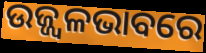
ଉଜ୍ଜ୍ୱଳଭାବରେ